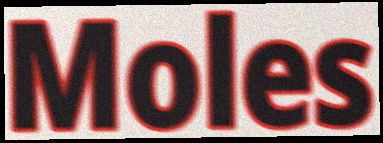
Moles